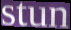
stun